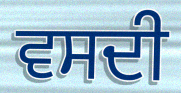
ਵਸਦੀ